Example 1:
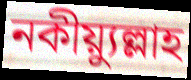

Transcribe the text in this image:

নকীয়্যুল্লাহ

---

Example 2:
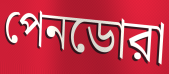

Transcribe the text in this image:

পেনডোরা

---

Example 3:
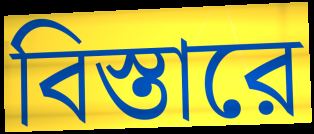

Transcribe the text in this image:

বিস্তারে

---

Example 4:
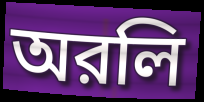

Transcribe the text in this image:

অরলি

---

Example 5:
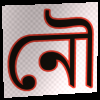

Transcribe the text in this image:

নৌ